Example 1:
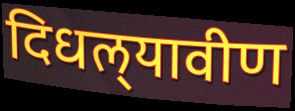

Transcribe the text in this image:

दिधल्यावीण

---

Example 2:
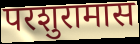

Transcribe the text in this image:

परशुरामास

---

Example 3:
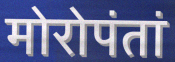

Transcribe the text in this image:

मोरोपंतां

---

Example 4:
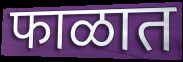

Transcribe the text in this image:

फाळात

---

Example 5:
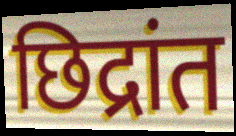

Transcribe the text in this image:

छिद्रांत